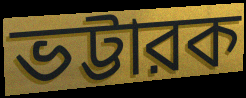
ভট্টারক